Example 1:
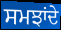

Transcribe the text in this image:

ਸਮਝਾਂਦੇ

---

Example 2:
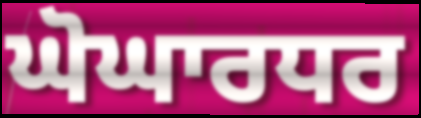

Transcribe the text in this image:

ਘੋਘਾਰਧਰ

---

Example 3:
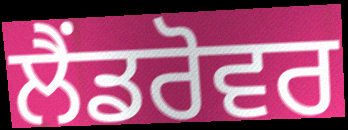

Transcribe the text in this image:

ਲੈਂਡਰੋਵਰ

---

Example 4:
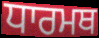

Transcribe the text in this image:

ਧਾਰਮਥ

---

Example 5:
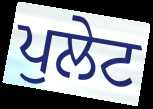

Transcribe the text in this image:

ਪੁਲੇਟ